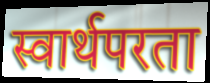
स्वार्थपरता